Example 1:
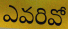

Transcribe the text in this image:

ఎవరివో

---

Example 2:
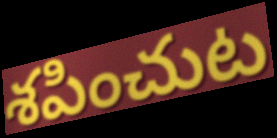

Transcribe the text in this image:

శపించుట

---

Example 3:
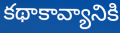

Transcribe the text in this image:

కథాకావ్యానికి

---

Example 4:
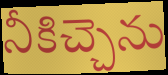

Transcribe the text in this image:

నీకిచ్చెను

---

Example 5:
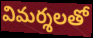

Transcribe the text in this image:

విమర్శలతో